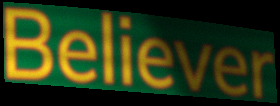
Believer